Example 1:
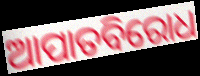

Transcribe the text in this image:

ଆପାତବିରୋଧ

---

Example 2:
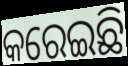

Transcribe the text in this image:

କରେଇଛି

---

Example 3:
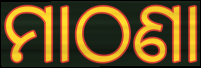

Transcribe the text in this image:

ମାଠଣା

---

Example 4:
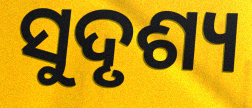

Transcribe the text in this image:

ସୁଦୃଶ୍ୟ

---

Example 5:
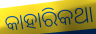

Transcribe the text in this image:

କାହାରିକଥା